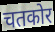
चतकोर